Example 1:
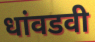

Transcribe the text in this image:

धांवडवी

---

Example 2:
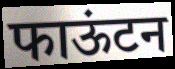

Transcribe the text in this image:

फाऊंटन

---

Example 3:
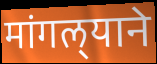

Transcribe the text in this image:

मांगल्याने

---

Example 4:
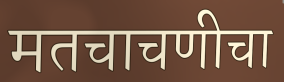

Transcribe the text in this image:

मतचाचणीचा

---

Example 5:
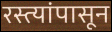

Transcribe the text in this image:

रस्त्यांपासून